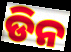
ଡିନ